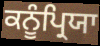
ਕਨੂੰਪ੍ਰਿਯਾ